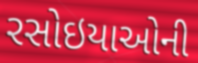
રસોઇયાઓની